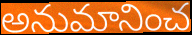
అనుమానించ